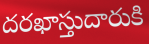
దరఖాస్తుదారుకి